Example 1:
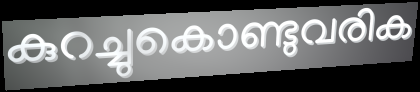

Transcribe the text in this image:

കുറച്ചുകൊണ്ടുവരിക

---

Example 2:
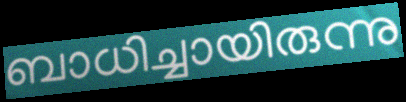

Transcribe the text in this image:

ബാധിച്ചായിരുന്നു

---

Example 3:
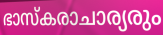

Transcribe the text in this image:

ഭാസ്കരാചാര്യരും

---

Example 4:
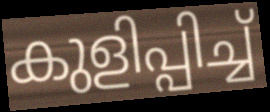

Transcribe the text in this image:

കുളിപ്പിച്ച്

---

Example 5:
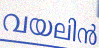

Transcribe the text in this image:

വയലിൻ